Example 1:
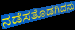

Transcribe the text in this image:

ನಡೆಸತೊಡಗಿದನು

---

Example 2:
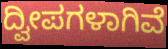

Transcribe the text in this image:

ದ್ವೀಪಗಳಾಗಿವೆ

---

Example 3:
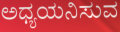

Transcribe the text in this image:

ಅಧ್ಯಯನಿಸುವ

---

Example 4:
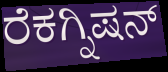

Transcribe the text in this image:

ರೆಕಗ್ನಿಷನ್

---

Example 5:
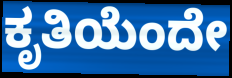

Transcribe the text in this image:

ಕೃತಿಯೆಂದೇ